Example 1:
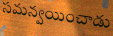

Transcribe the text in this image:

సమన్వయించాడు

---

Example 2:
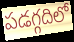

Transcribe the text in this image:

పడగ్గదిలో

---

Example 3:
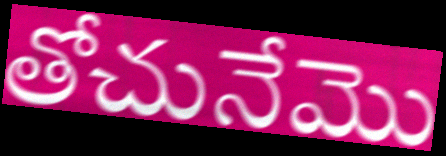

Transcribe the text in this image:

తోచునేమొ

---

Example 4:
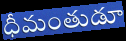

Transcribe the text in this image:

ధీమంతుడూ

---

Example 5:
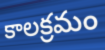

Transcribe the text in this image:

కాలక్రమం